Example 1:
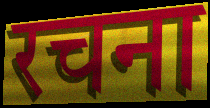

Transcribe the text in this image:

रचना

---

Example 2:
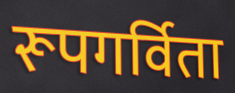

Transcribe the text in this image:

रूपगर्विता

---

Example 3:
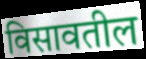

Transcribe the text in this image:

विसावतील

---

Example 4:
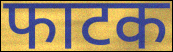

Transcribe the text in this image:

फाटक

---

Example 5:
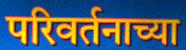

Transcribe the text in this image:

परिवर्तनाच्या